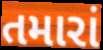
તમારાં